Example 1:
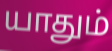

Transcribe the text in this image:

யாதும்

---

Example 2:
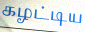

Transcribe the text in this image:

கழட்டிய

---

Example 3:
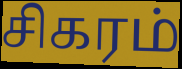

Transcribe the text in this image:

சிகரம்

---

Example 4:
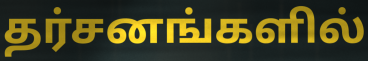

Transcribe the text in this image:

தர்சனங்களில்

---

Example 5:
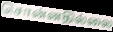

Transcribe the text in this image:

சொன்னதில்லை